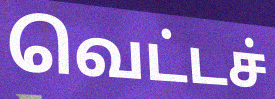
வெட்டச்